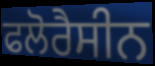
ਫਲੋਰੈਸੀਨ